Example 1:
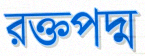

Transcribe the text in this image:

রক্তপদ্ম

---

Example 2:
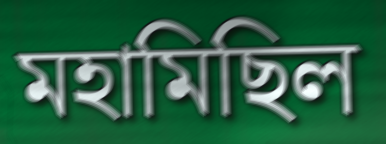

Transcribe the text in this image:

মহামিছিল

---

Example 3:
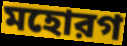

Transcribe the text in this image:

মহোরগ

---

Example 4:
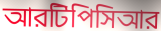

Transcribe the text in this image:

আরটিপিসিআর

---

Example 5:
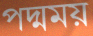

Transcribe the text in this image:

পদ্মময়